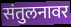
संतुलनावर